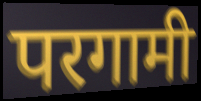
परगामी